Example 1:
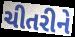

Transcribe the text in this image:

ચીતરીને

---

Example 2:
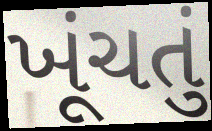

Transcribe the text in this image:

ખૂંચતું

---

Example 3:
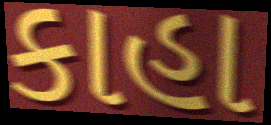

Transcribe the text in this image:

કાહા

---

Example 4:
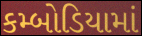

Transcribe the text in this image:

કમ્બોડિયામાં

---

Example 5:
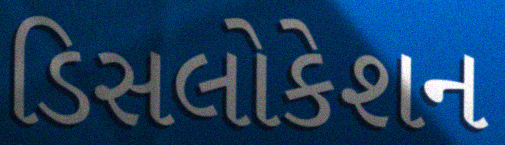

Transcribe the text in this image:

ડિસલોકેશન